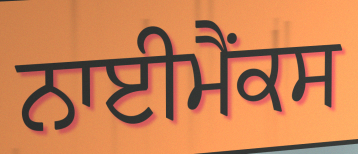
ਨਾਈਮੈਂਕਸ